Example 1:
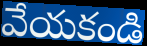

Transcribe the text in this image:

వేయకండి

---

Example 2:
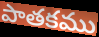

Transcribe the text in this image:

పాతకము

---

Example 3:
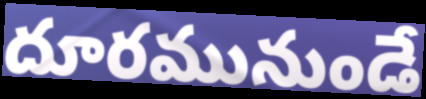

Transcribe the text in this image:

దూరమునుండే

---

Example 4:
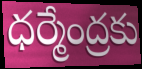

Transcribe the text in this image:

ధర్మేంద్రకు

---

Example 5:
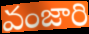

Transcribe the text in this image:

వంజారి